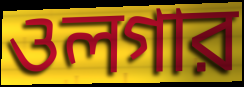
ওলগার